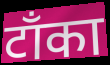
टाँका